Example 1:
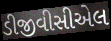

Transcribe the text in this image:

ડીજીવીસીએલ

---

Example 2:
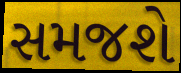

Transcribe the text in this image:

સમજશે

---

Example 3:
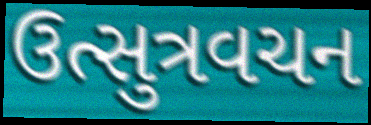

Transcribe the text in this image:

ઉત્સુત્રવચન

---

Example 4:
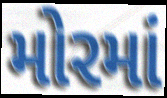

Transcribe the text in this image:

મોરમાં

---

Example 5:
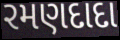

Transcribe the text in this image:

રમણદાદા